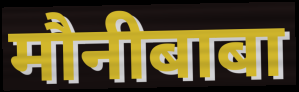
मौनीबाबा